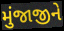
મુંજાજીને